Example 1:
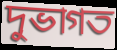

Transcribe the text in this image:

দুভাগত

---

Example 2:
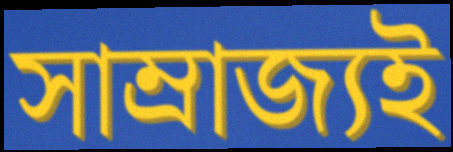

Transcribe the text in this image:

সাম্ৰাজ্যই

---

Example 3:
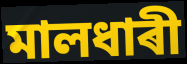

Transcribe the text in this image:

মালধাৰী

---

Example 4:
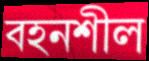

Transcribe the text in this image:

বহনশীল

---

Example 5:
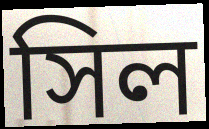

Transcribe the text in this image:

সিল